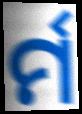
ର୍ମ